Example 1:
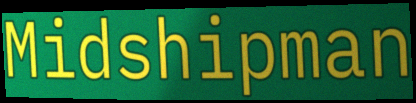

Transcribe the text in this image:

Midshipman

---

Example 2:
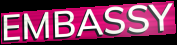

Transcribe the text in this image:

EMBASSY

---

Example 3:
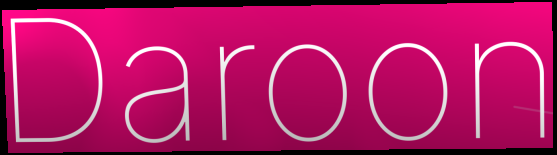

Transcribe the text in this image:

Daroon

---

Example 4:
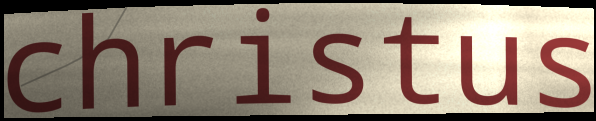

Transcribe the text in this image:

christus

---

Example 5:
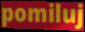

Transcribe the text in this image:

pomiluj